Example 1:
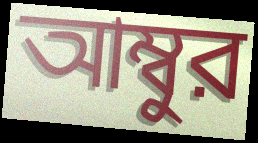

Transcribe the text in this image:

আম্বুর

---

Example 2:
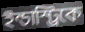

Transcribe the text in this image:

ইন্ডাস্ট্রিকে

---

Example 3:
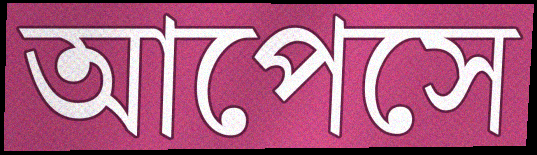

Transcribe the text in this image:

আপেসে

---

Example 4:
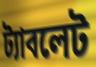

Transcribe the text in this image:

ট্যাবলেট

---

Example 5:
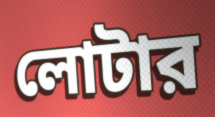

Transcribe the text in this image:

লোটার